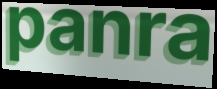
panra